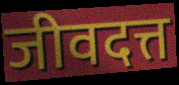
जीवदत्त